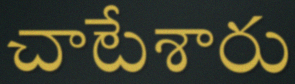
చాటేశారు